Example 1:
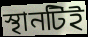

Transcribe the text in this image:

স্থানটিই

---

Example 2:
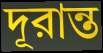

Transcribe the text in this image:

দূরান্ত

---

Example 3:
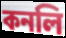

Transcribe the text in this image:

কনলি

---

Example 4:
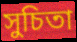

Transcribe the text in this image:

সুচিতা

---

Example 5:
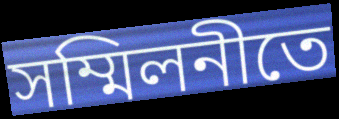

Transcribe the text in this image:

সম্মিলনীতে